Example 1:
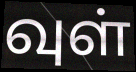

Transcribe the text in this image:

வுள்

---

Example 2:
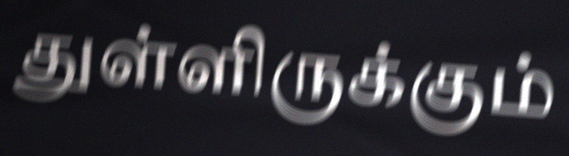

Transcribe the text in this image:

துள்ளிருக்கும்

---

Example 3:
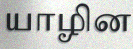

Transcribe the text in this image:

யாழின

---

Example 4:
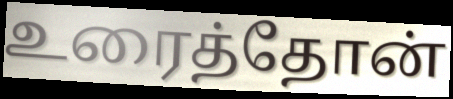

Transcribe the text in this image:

உரைத்தோன்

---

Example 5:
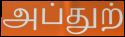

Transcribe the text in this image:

அப்துற்